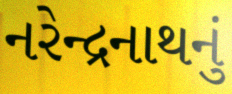
નરેન્દ્રનાથનું